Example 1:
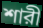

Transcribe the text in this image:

শারী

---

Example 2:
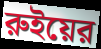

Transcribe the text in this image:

রুইয়ের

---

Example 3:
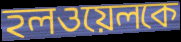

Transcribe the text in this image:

হলওয়েলকে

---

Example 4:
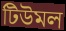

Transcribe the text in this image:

টিউমল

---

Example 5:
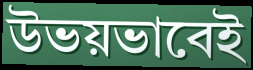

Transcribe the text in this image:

উভয়ভাবেই